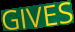
GIVES